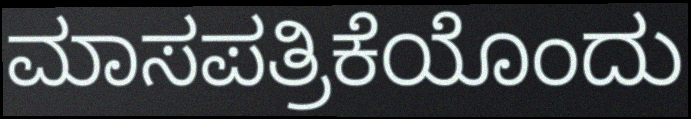
ಮಾಸಪತ್ರಿಕೆಯೊಂದು